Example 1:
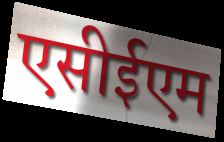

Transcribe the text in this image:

एसीईएम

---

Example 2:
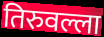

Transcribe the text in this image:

तिरुवल्ला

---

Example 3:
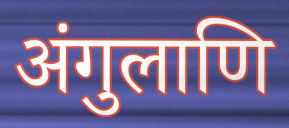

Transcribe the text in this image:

अंगुलाणि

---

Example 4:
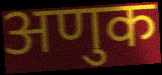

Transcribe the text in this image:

अणुक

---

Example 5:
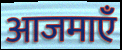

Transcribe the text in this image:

आजमाएँ